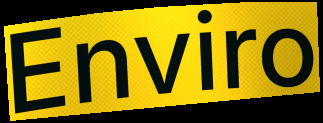
Enviro